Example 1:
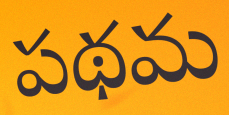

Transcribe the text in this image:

పథమ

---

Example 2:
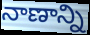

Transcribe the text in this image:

నాణాన్ని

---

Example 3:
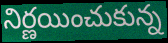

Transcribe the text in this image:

నిర్ణయించుకున్న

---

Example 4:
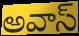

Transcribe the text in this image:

అవాస్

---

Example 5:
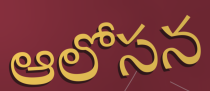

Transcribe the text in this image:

ఆలోసన